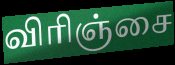
விரிஞ்சை